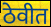
ठेवीत